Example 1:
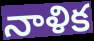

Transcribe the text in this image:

నాళిక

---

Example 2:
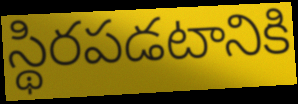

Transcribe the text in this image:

స్థిరపడటానికి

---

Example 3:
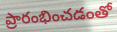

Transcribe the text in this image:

ప్రారంభించడంతో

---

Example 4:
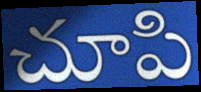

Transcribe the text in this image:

చూపి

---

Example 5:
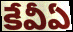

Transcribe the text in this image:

కేవీఏ